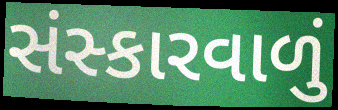
સંસ્કારવાળું